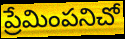
ప్రేమింపనిచో